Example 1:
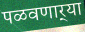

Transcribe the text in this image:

पळवणार्या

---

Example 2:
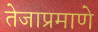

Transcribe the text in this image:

तेजाप्रमाणे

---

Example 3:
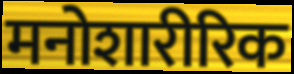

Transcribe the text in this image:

मनोशारीरिक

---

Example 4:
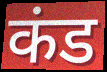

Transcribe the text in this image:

कंड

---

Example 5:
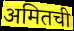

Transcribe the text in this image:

अमितची